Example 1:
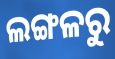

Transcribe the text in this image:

ଲଙ୍ଗଳରୁ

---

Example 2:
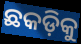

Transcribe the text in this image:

ଛକଡ଼ିକୁ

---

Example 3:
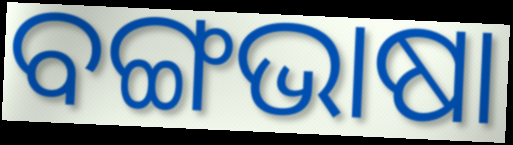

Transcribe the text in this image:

ବଙ୍ଗଭାଷା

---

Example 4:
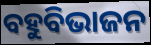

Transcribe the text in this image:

ବହୁବିଭାଜନ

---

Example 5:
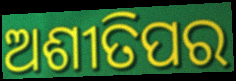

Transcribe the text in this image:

ଅଶୀତିପର